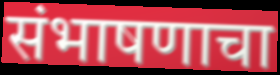
संभाषणाचा